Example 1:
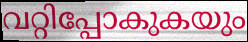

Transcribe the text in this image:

വറ്റിപ്പോകുകയും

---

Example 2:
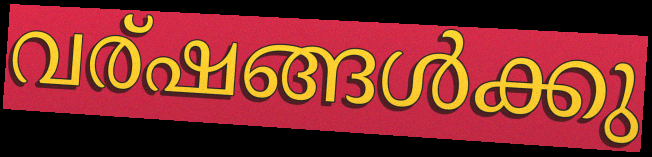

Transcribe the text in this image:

വര്ഷങ്ങൾക്കു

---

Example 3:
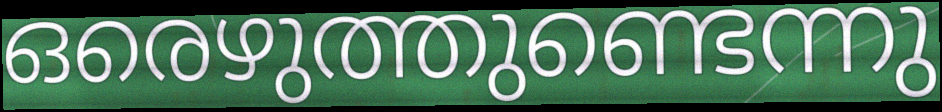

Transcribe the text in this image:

ഒരെഴുത്തുണ്ടെന്നു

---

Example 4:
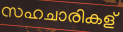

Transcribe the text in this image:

സഹചാരികള്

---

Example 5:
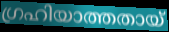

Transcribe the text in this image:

ഗ്രഹിയാത്തതായ്